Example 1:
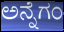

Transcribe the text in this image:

ಅನ್ನೆಗಂ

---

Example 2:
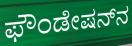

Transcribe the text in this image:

ಫೌಂಡೇಷನ್‌ನ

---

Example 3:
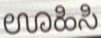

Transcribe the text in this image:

ಊಹಿಸಿ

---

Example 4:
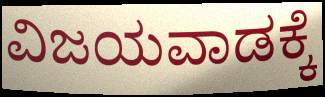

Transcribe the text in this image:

ವಿಜಯವಾಡಕ್ಕೆ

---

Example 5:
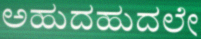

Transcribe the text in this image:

ಅಹುದಹುದಲೇ